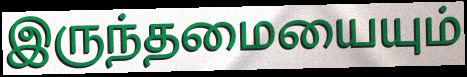
இருந்தமையையும்